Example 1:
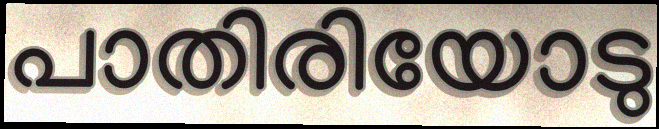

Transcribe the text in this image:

പാതിരിയോടു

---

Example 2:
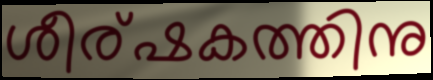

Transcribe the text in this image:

ശീര്ഷകത്തിനു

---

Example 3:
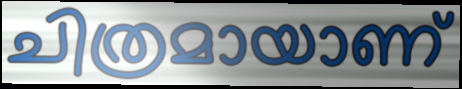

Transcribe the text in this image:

ചിത്രമായാണ്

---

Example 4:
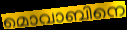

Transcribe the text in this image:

മൊവാബിനെ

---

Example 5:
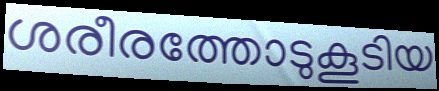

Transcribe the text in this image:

ശരീരത്തോടുകൂടിയ